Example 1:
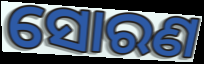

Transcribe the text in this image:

ସୋରଣ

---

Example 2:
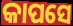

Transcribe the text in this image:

କାପସେ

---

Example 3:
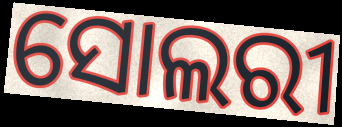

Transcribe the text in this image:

ସୋଲରୀ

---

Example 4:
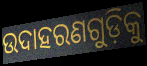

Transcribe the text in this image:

ଉଦାହରଣଗୁଡ଼ିକୁ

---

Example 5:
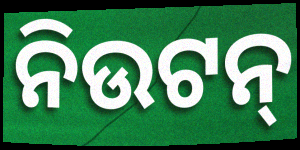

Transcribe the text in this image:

ନିଉଟନ୍